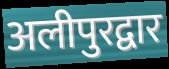
अलीपुरद्वार